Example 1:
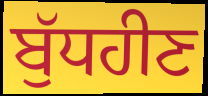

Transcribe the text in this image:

ਬੁੱਧਹੀਣ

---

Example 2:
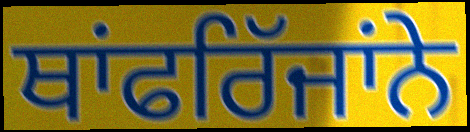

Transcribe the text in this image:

ਥਾਂਫਰਿੱਜਾਂਨੇ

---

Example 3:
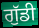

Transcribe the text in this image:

ਗੁੱਡੀ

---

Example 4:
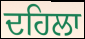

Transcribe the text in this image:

ਦਹਿਲਾ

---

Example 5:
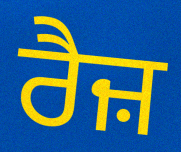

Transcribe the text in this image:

ਰੈਜ਼